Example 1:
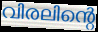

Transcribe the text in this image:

വിരലിന്റെ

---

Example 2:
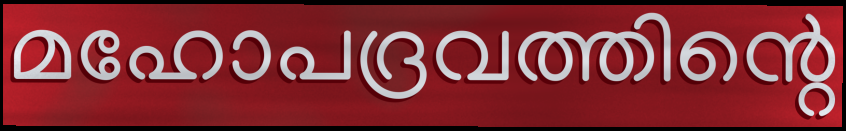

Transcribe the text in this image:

മഹോപദ്രവത്തിന്റെ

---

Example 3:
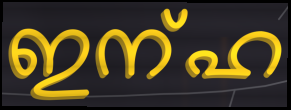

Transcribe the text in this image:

ഇന്ഹ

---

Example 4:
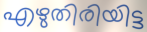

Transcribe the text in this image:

എഴുതിരിയിട്ട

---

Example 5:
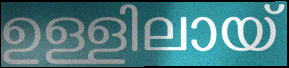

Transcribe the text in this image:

ഉള്ളിലായ്